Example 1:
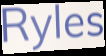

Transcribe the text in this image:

Ryles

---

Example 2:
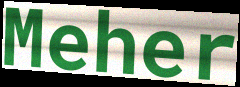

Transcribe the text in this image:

Meher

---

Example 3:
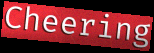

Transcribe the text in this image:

Cheering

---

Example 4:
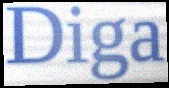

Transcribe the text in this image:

Diga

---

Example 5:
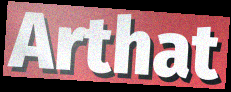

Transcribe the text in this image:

Arthat